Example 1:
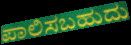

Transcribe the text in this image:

ಪಾಲಿಸಬಹುದು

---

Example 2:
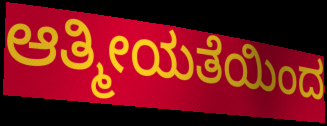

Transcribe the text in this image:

ಆತ್ಮೀಯತೆಯಿಂದ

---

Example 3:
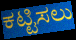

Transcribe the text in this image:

ಕಟ್ಟಿಸಲು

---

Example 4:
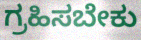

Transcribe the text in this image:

ಗ್ರಹಿಸಬೇಕು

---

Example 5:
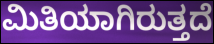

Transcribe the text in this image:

ಮಿತಿಯಾಗಿರುತ್ತದೆ